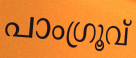
പാംഗ്രൂവ്